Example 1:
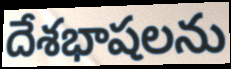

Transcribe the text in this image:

దేశభాషలను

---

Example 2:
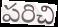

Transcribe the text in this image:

పరిచి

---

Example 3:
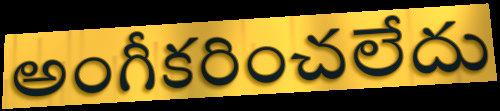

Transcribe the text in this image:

అంగీకరించలేదు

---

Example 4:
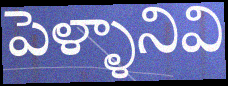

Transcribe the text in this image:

పెళ్ళానివి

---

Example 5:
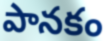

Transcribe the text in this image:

పానకం